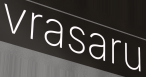
vrasaru